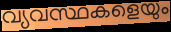
വ്യവസ്ഥകളെയും